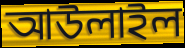
আউলাইল